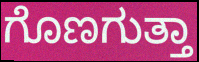
ಗೊಣಗುತ್ತಾ